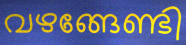
വഴങ്ങേണ്ടി